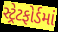
સ્ટ્રેટફોર્ડમાં